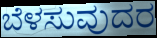
ಬೆಳಸುವುದರ